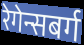
रेगेन्सबर्ग